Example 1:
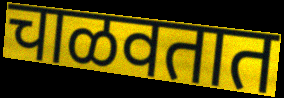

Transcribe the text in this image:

चाळवतात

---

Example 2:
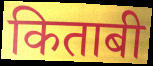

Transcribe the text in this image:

किताबी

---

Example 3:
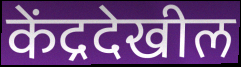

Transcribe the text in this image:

केंद्रदेखील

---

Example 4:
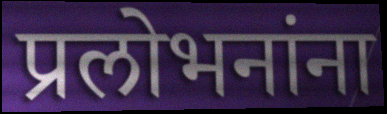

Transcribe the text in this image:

प्रलोभनांना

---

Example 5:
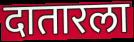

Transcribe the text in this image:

दातारला